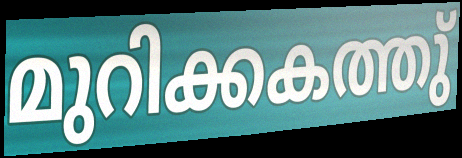
മുറിക്കകത്തു്